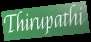
Thirupathi